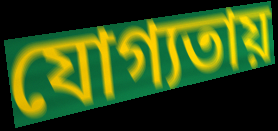
যোগ্যতায়